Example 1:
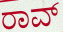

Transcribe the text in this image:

ರಾವ್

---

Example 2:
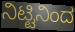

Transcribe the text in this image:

ನಿಟ್ಟಿನಿಂದ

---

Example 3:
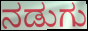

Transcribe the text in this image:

ನಡುಗು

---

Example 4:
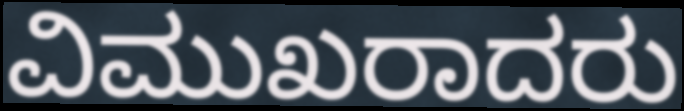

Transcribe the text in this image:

ವಿಮುಖರಾದರು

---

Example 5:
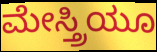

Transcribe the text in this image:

ಮೇಸ್ತ್ರಿಯೂ